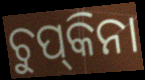
ଚୁପ୍‌କିନା